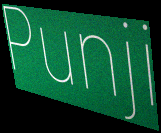
Punji